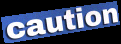
caution